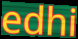
edhi